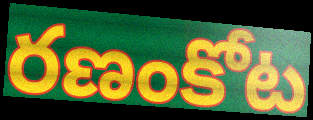
రణంకోట